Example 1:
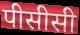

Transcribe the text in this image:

पीसीसी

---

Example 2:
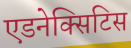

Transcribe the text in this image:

एडनेक्सिटिस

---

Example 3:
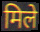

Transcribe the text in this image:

मिले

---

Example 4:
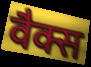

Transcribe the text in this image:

वैक्स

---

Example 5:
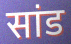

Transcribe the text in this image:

सांड